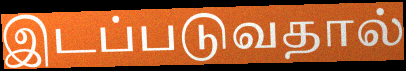
இடப்படுவதால்